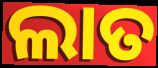
ଲାତ